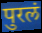
पुरलं